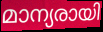
മാന്യരായി